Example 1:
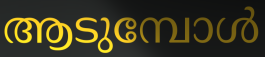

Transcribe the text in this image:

ആടുമ്പോൾ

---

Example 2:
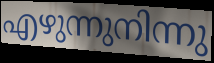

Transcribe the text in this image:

എഴുന്നുനിന്നു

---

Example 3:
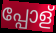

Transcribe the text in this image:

പ്പോള്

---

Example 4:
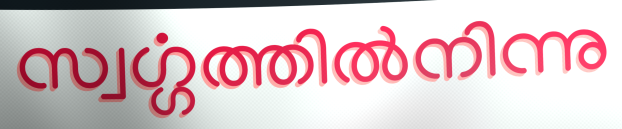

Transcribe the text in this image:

സ്വൎഗ്ഗത്തിൽനിന്നു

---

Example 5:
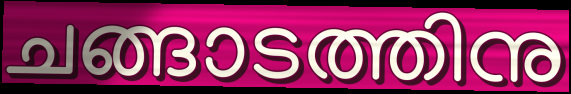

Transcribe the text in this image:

ചങ്ങാടത്തിനു